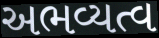
અભવ્યત્વ